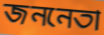
জননেতা